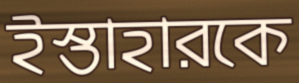
ইস্তাহারকে